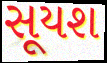
સૂયશ